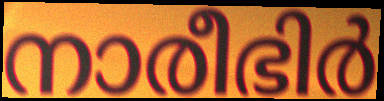
നാരീഭിർ